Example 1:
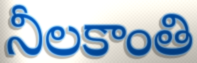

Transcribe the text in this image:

నీలకాంతి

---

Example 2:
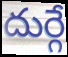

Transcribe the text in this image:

దుర్గే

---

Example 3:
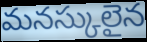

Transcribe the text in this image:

మనస్కులైన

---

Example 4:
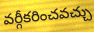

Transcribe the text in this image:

వర్గీకరించవచ్చు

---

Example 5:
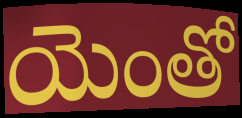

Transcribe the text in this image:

యెంతో